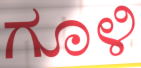
ಗೂಳಿ